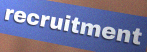
recruitment